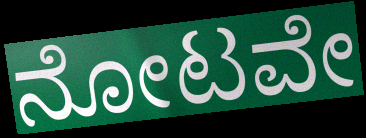
ನೋಟವೇ